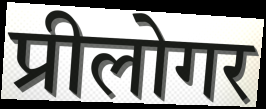
प्रीलोगर